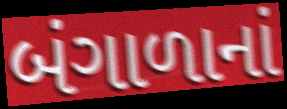
બંગાળાનાં